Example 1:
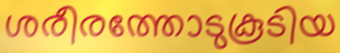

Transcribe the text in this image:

ശരീരത്തോടുകൂടിയ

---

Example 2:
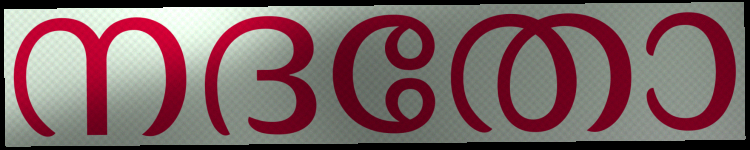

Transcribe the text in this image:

നദതോ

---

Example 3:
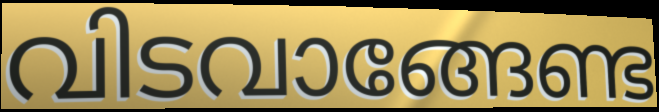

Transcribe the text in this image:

വിടവാങ്ങേണ്ട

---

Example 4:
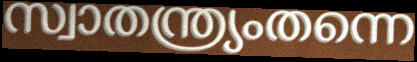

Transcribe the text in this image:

സ്വാതന്ത്ര്യംതന്നെ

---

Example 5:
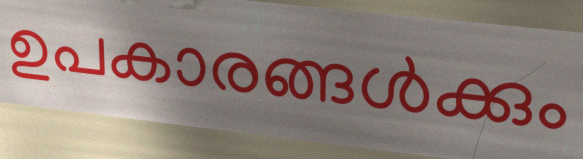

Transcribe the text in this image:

ഉപകാരങ്ങൾക്കും